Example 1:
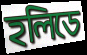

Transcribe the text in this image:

হলিডে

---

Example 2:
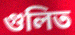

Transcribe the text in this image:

গুলিত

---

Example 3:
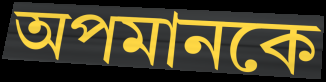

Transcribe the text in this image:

অপমানকে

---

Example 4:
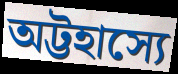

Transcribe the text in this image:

অট্টহাস্যে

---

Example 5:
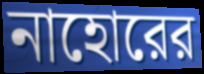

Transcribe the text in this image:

নাহোরের